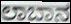
ಲಾಬಾನ